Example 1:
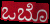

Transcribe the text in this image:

ಒಬೊ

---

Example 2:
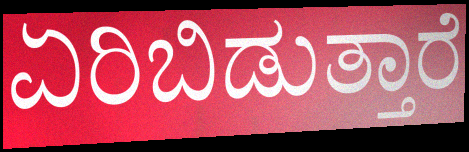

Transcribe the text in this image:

ಏರಿಬಿಡುತ್ತಾರೆ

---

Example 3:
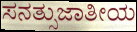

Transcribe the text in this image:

ಸನತ್ಸುಜಾತೀಯ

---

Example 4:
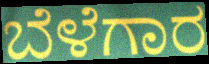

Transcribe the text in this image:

ಬೆಳೆಗಾರ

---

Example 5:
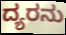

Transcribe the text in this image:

ದ್ಯರನು